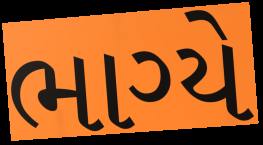
ભાગ્યે